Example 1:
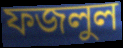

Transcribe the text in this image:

ফজলুল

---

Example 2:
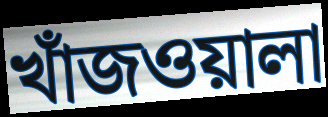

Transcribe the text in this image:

খাঁজওয়ালা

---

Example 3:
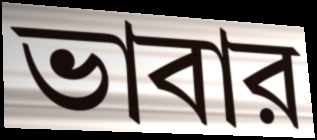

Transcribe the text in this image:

ভাবার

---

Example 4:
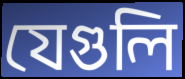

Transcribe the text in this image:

যেগুলি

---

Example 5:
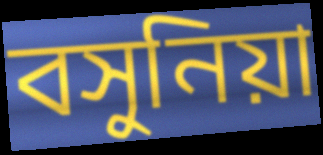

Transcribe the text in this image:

বসুনিয়া